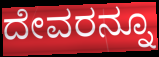
ದೇವರನ್ನೂ